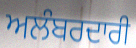
ਅਲੰਬਰਦਾਰੀ